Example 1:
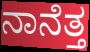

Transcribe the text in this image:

ನಾನೆತ್ತ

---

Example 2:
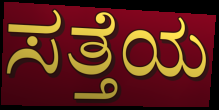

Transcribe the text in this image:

ಸತ್ತೆಯ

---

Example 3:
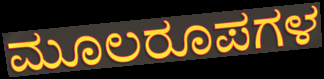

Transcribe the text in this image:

ಮೂಲರೂಪಗಳ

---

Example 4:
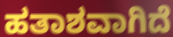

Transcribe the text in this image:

ಹತಾಶವಾಗಿದೆ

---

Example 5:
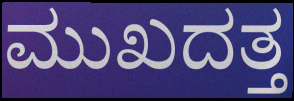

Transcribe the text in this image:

ಮುಖದತ್ತ